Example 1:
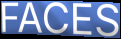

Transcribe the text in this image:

FACES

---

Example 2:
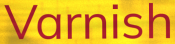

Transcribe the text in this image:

Varnish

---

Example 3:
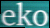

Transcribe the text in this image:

eko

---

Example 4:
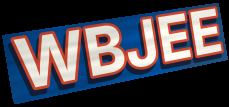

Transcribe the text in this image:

WBJEE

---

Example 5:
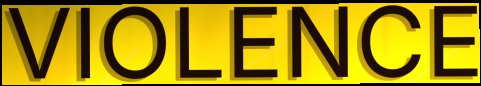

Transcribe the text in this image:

VIOLENCE